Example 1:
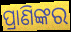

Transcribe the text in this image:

ପ୍ରାଣିଙ୍କର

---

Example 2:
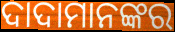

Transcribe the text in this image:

ଦାଦାମାନଙ୍କର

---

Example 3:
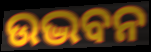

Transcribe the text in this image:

ଉଦ୍ଭବନ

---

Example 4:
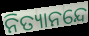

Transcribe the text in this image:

ନିତ୍ୟାନନ୍ଦେ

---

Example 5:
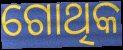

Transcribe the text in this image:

ଗୋଥିକ